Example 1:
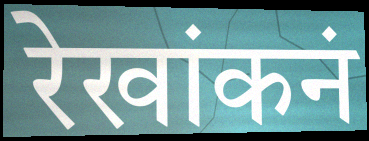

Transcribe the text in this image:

रेखांकनं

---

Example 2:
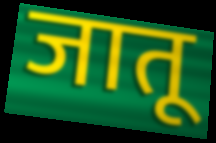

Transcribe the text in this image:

जातू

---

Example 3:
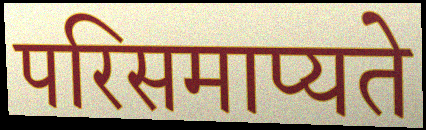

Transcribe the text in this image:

परिसमाप्यते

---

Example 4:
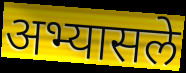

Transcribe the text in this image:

अभ्यासले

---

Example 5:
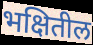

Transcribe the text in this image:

भक्षितील